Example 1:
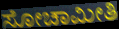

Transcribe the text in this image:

ಸೋಚಾಮೀತಿ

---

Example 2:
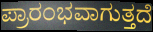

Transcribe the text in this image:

ಪ್ರಾರಂಭವಾಗುತ್ತದೆ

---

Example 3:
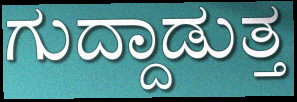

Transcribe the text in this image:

ಗುದ್ದಾಡುತ್ತ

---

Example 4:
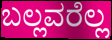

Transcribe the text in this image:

ಬಲ್ಲವರೆಲ್ಲ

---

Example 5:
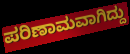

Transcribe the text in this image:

ಪರಿಣಾಮವಾಗಿದ್ದು